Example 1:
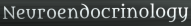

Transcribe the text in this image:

Neuroendocrinology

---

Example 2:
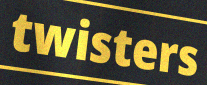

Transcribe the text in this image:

twisters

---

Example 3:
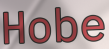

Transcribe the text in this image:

Hobe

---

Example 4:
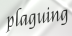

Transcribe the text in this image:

plaguing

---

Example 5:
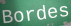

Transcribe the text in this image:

Bordes